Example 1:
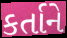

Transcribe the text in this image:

કર્તાને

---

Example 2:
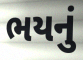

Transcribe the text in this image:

ભયનું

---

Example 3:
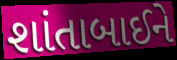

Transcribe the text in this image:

શાંતાબાઈને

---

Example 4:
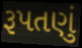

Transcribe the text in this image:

રૂપતણું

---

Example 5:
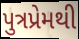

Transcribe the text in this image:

પુત્રપ્રેમથી